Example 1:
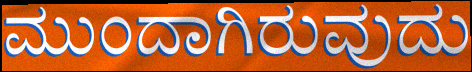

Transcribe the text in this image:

ಮುಂದಾಗಿರುವುದು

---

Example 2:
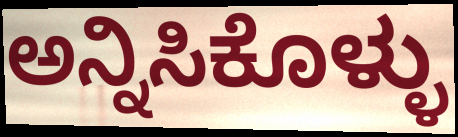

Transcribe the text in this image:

ಅನ್ನಿಸಿಕೊಳ್ಳು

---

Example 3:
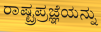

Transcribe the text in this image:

ರಾಷ್ಟ್ರಪ್ರಜ್ಞೆಯನ್ನು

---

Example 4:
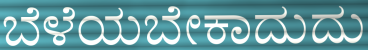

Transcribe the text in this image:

ಬೆಳೆಯಬೇಕಾದುದು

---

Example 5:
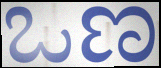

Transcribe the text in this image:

ಒಣ